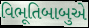
વિભૂતિબાબુએ